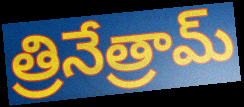
త్రినేత్రామ్